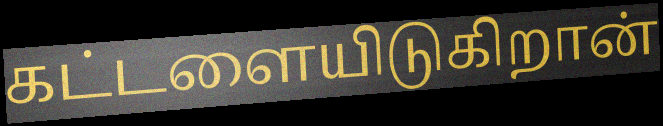
கட்டளையிடுகிறான்